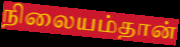
நிலையம்தான்